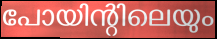
പോയിന്റിലെയും